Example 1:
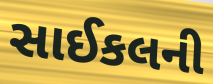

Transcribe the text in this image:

સાઈકલની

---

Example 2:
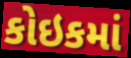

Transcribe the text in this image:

કોઇકમાં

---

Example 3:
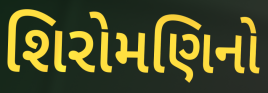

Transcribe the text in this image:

શિરોમણિનો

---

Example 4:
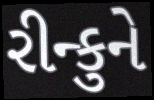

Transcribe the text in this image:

રીન્કુને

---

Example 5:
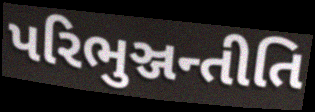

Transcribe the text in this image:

પરિભુઞ્જન્તીતિ